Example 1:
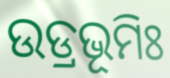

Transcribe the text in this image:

ଉଡ୍ରଭୂମିଃ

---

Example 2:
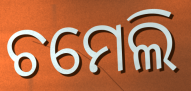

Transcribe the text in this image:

ଚମେଲି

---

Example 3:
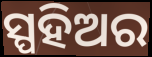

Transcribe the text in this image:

ସ୍ପହିଅର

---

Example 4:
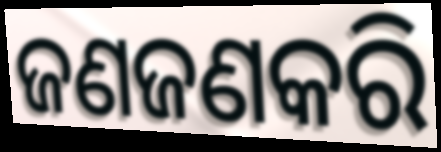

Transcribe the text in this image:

ଜଣଜଣକରି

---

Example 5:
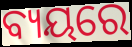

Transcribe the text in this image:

ବ୍ୟୟରେ